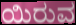
ಯಿರುವ